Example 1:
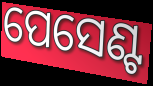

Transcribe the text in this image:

ପେସେଣ୍ଟ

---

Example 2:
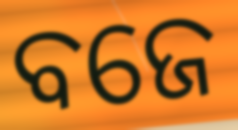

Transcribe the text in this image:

ବଜେ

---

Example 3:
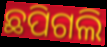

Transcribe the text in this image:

ଛପିଗଲି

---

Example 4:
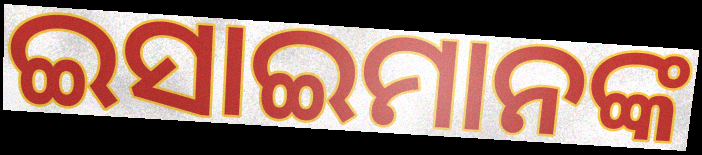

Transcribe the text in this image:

ଇସାଇମାନଙ୍କ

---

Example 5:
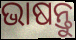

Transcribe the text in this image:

ଭାଷନ୍ତୁ